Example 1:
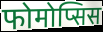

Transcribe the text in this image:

फोमोप्सिस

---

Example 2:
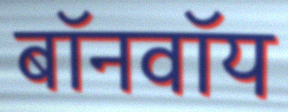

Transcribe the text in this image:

बॉनवॉय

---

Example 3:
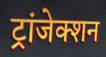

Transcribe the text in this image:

ट्रांजेक्शन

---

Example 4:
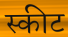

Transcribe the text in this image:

स्कीट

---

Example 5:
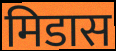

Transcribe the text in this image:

मिडास